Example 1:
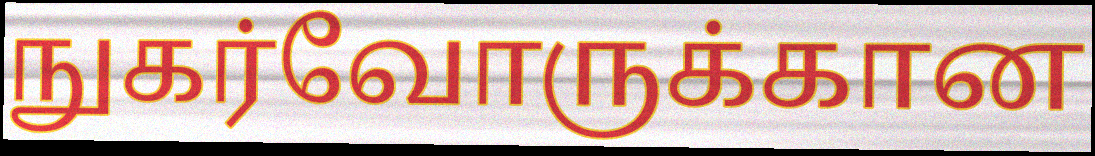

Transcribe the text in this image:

நுகர்வோருக்கான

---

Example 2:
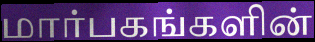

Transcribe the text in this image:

மார்பகங்களின்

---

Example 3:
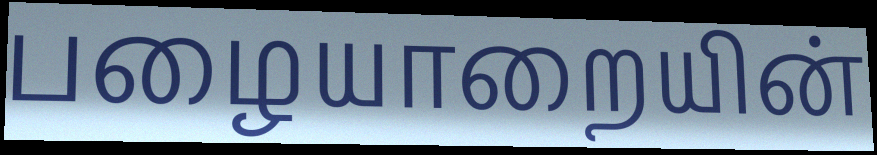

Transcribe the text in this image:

பழையாறையின்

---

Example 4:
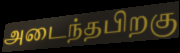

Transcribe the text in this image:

அடைந்தபிறகு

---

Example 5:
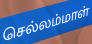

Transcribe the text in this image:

செல்லம்மாள்